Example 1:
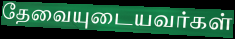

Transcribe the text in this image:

தேவையுடையவர்கள்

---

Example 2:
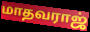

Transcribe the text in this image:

மாதவராஜ்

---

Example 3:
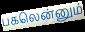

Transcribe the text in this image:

பகலென்னும்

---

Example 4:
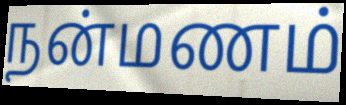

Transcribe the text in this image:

நன்மணம்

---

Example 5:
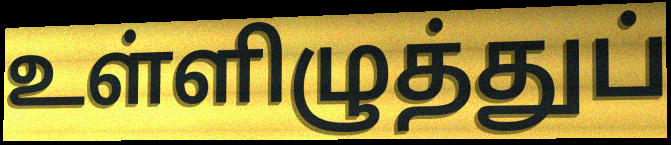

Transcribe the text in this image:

உள்ளிழுத்துப்